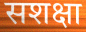
सशक्षा